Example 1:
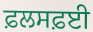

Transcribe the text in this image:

ਫ਼ਲਸਫ਼ਈ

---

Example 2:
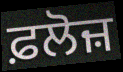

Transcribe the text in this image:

ਫ਼ਲੋਜ਼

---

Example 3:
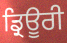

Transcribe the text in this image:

ਡ੍ਰਿਊਰੀ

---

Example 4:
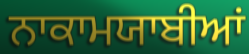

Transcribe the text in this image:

ਨਾਕਾਮਯਾਬੀਆਂ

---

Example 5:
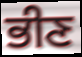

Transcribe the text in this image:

ਭੀਣ